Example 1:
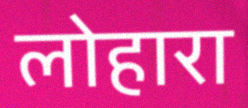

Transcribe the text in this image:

लोहारा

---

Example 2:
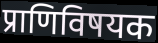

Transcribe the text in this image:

प्राणिविषयक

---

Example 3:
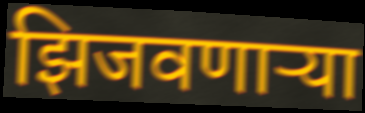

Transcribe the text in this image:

झिजवणाऱ्या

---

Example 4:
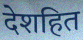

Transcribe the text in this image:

देशहित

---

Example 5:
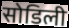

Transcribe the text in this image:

सोडिली